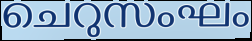
ചെറുസംഘം